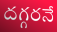
దగ్గరనే